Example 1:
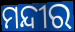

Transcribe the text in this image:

ମନ୍ଦୀର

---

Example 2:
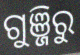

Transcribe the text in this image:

ଗୁଞ୍ଜିରୁ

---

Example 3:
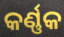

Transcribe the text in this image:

କର୍ଣ୍ଣକ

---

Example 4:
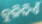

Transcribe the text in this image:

ବୁଜିଦିଏଁ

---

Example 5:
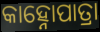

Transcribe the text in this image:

କାହ୍ନୋପାତ୍ରା